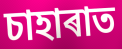
চাহাৰাত